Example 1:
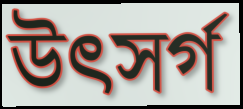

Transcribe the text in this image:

উৎসৰ্গ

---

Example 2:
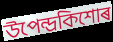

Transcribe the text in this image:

উপেন্দ্ৰকিশোৰ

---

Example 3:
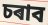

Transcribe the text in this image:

চৰাব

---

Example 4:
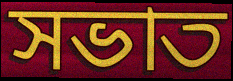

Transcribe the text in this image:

সভাত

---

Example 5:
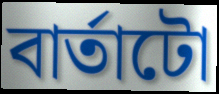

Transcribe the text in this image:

বাৰ্তাটো